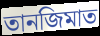
তানজিমাত